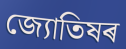
জ্যোতিষৰ